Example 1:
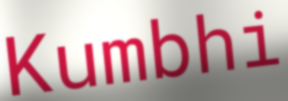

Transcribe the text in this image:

Kumbhi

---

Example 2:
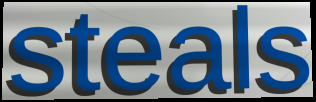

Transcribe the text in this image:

steals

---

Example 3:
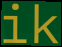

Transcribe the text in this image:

ik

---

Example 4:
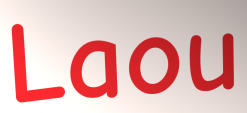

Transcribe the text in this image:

Laou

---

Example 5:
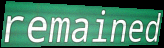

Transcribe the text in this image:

remained